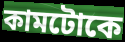
কামটোকে